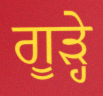
ਗੂੜ੍ਹੇ